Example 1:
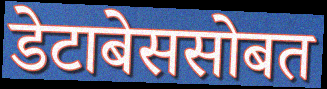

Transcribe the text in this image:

डेटाबेससोबत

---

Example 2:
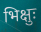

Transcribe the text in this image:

भिक्षुः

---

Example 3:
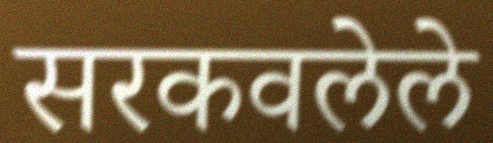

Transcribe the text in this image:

सरकवलेले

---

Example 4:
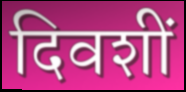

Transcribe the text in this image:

दिवशीं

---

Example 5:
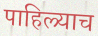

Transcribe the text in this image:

पाहिल्याच